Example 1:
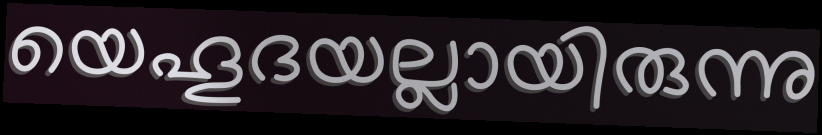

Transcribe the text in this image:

യെഹൂദയല്ലായിരുന്നു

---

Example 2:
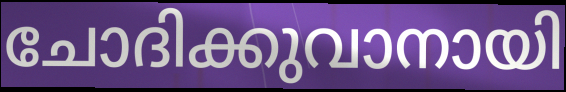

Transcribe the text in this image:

ചോദിക്കുവാനായി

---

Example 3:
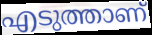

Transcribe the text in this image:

എടുത്താണ്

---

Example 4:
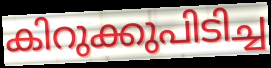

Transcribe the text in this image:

കിറുക്കുപിടിച്ച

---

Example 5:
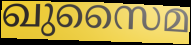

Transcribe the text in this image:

ഖുസൈമ